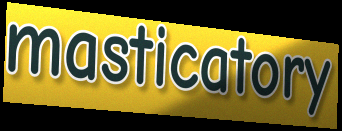
masticatory